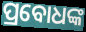
ପ୍ରବୋଧଙ୍କ